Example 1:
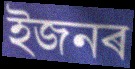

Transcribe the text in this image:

ইজনৰ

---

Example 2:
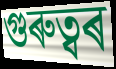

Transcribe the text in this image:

গুৰুত্বৰ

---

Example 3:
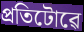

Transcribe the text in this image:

প্ৰতিটোৱে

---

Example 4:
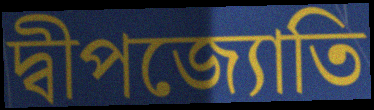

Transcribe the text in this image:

দ্বীপজ্যোতি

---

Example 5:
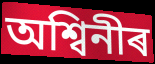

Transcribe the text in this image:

অশ্বিনীৰ